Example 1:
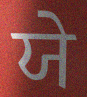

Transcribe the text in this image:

ਯੇ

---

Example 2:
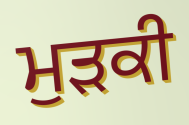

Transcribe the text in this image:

ਮੁੜਕੀ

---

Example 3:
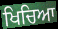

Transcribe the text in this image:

ਖਿਚਿਆ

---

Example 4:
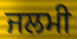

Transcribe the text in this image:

ਜਲਮੀ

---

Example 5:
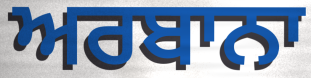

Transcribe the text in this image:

ਅਰਬਾਨਾ